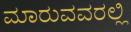
ಮಾರುವವರಲ್ಲಿ